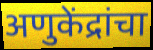
अणुकेंद्रांचा